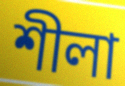
শীলা